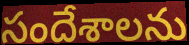
సందేశాలను